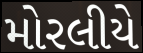
મોરલીયે